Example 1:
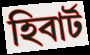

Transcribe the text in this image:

হিবার্ট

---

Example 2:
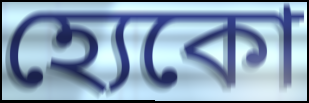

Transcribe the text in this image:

হ্যেকো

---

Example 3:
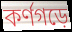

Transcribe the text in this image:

কর্ণগড়ে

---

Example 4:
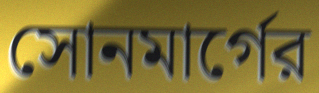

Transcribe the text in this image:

সোনমার্গের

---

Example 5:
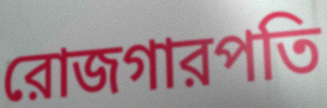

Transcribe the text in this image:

রোজগারপতি